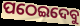
ପଠେଇଦେବୁ